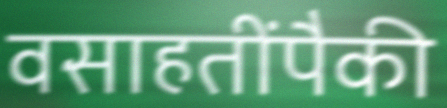
वसाहतींपैकी